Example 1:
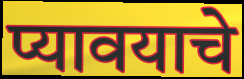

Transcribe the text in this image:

प्यावयाचे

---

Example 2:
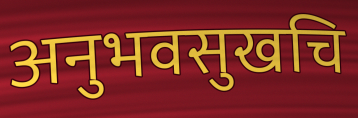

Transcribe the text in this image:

अनुभवसुखचि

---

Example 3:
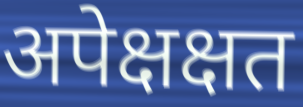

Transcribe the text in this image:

अपेक्षक्षत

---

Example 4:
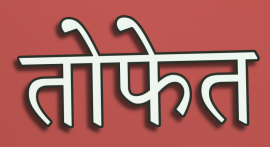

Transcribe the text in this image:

तोफेत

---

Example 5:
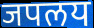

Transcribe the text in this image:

जपलय